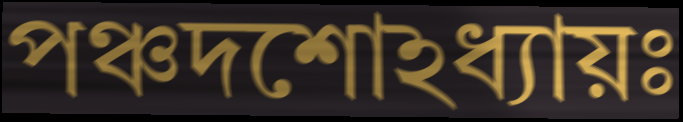
পঞ্চদশোঽধ্যায়ঃ